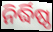
ନିର୍ଦ୍ଧିଷ୍ଠ